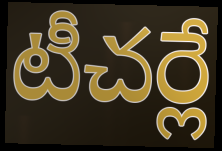
టీచర్లే